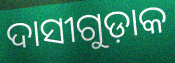
ଦାସୀଗୁଡ଼ାକ